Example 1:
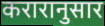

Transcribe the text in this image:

करारानुसार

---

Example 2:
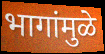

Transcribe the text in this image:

भागांमुळे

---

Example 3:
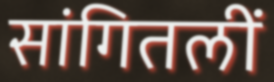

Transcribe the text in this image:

सांगितलीं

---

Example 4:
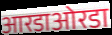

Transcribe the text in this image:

आरडाओरडा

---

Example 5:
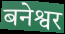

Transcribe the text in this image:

बनेश्वर